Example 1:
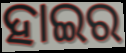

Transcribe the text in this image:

ହାଇର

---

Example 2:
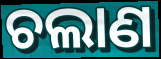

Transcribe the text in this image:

ଚଲାଣ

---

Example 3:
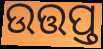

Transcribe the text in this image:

ଉତ୍ତପ୍ତ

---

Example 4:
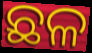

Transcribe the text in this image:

ଛଳ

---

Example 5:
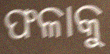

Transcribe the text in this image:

ଫଳାକୁ